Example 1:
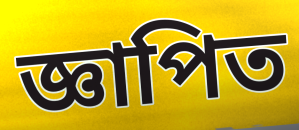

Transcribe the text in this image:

জ্ঞাপিত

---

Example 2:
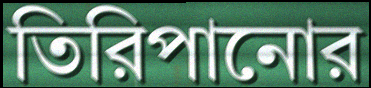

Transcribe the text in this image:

তিরিপানোর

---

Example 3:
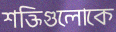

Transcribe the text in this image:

শক্তিগুলোকে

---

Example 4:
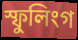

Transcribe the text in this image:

স্ফুলিংগ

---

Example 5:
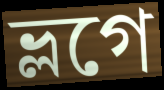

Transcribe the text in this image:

ভ্লগে